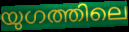
യുഗത്തിലെ